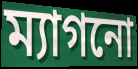
ম্যাগনো